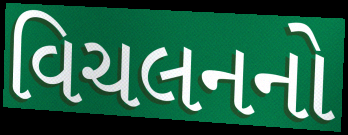
વિચલનનો